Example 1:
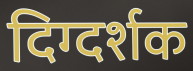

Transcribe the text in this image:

दिग्दर्शक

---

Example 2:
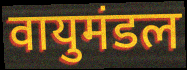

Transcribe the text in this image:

वायुमंडल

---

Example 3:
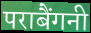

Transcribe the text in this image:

पराबैंगनी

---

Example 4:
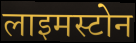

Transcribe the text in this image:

लाइमस्टोन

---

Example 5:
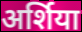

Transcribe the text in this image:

अर्शिया